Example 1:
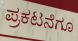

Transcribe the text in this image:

ಪ್ರಕಟನೆಗೂ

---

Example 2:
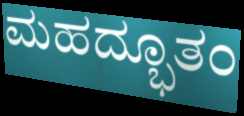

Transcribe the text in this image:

ಮಹದ್ಭೂತಂ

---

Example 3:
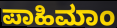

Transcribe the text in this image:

ಪಾಹಿಮಾಂ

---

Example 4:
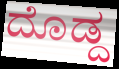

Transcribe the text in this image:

ದೊಡ್ದ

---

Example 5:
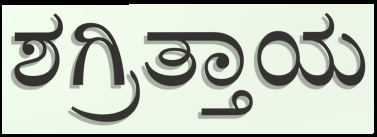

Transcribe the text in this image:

ಶಗ್ರಿತ್ತಾಯ